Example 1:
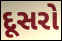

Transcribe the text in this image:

દૂસરો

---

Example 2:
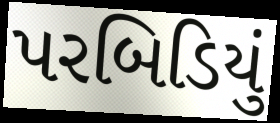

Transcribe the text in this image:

પરબિડિયું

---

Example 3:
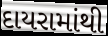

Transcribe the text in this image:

દાયરામાંથી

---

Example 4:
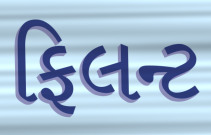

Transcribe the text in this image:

ફિલન્ટ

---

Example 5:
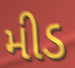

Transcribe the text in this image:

મીડ